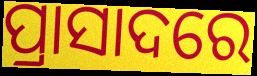
ପ୍ରାସାଦରେ